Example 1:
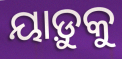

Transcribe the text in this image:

ୟାଡ଼ୁକୁ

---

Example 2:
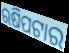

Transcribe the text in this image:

ଋଷିପଟାର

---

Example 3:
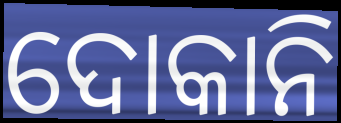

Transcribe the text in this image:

ଦୋକାନି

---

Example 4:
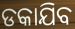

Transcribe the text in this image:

ଡକାଯିବ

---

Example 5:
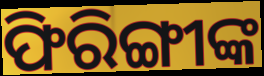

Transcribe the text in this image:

ଫିରିଙ୍ଗୀଙ୍କ